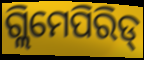
ଗ୍ଲିମେପିରିଡ୍